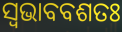
ସ୍ୱଭାବବଶତଃ